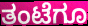
ತಂಟೆಗೂ